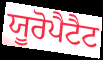
ਯੂਰੋਪੈਟੈਟ